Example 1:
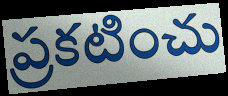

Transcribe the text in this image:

ప్రకటించు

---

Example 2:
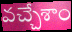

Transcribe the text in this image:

వచ్చేశాం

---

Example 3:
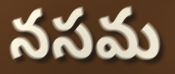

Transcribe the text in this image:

నసమ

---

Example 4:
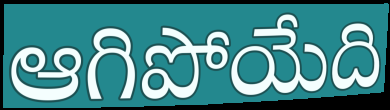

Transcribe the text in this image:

ఆగిపోయేది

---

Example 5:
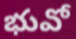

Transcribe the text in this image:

భువో